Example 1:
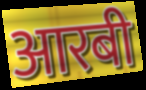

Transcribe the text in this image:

आरबी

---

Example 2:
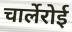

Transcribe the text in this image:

चार्लेरोई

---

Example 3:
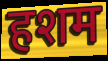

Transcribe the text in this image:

हशम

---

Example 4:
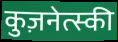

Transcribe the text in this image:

कुज़नेत्स्की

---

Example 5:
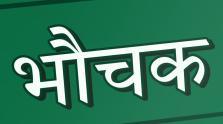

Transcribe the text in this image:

भौचक